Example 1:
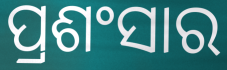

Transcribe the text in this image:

ପ୍ରଶଂସାର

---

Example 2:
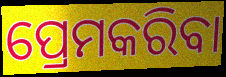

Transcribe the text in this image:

ପ୍ରେମକରିବା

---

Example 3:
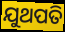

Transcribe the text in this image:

ଯୁଥପତି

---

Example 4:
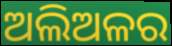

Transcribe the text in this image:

ଅଲିଅଳର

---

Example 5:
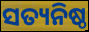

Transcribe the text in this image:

ସତ୍ୟନିଷ୍ଠ